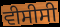
ਵੀਸੀਸੀ